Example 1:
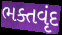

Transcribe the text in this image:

ભક્તવૃંદ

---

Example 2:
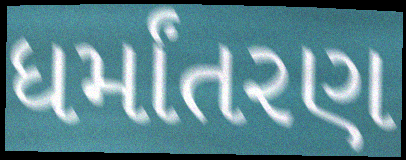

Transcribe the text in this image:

ધર્માંતરણ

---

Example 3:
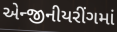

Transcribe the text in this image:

એન્જીનીયરીંગમાં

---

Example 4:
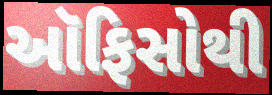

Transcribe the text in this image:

ઑફિસોથી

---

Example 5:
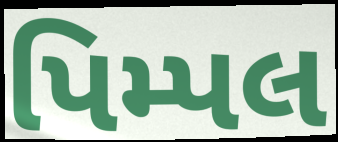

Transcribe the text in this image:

પિમ્પલ